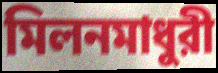
মিলনমাধুরী